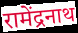
रामेंद्रनाथ